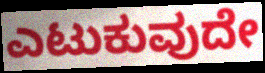
ಎಟುಕುವುದೇ